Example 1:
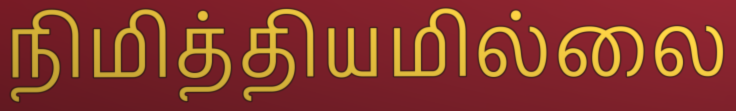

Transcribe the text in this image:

நிமித்தியமில்லை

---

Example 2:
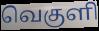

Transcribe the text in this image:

வெகுளி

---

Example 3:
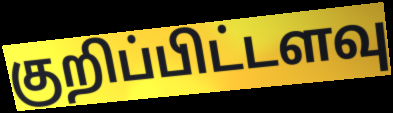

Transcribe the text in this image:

குறிப்பிட்டளவு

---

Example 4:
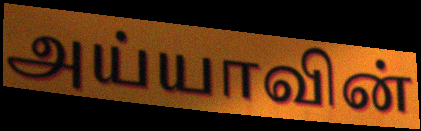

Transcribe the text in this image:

அய்யாவின்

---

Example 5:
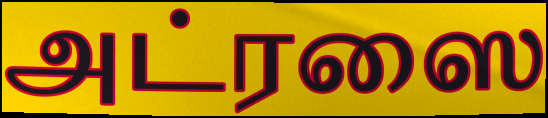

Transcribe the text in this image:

அட்ரஸை